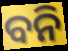
ବନି